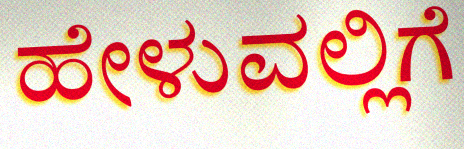
ಹೇಳುವಲ್ಲಿಗೆ